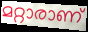
മറ്റാരാണ്